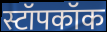
स्टॉपकॉक